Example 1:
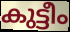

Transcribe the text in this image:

കുട്ടീം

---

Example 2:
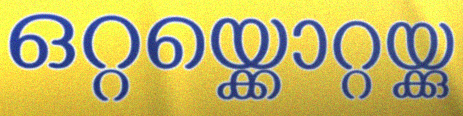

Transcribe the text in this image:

ഒറ്റയ്ക്കൊറ്റയ്ക്കു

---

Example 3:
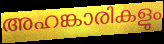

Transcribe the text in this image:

അഹങ്കാരികളും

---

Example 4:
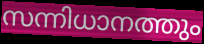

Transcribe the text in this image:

സന്നിധാനത്തും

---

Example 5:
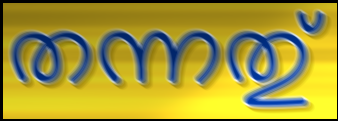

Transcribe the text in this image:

തന്നതു്